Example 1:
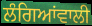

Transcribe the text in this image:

ਲੰਗਿਆਂਵਾਲੀ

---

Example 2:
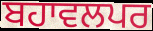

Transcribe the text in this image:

ਬਹਾਵਲਪਰ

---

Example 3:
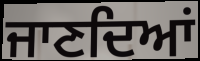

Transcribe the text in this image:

ਜਾਣਦਿਆਂ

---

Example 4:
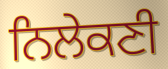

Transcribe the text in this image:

ਨਿਲੇਕਣੀ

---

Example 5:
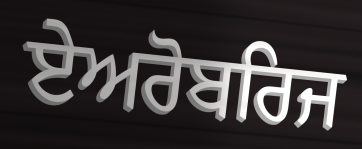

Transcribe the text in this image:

ਏਅਰੋਬਰਿਜ